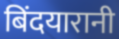
बिंदयारानी